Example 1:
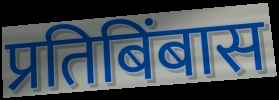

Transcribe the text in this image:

प्रतिबिंबास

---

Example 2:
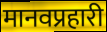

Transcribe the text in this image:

मानवप्रहारी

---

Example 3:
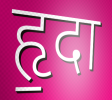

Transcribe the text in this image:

हृ॒दा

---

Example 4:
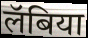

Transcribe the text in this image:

लॅबिया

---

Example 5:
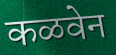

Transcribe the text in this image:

कळवेन